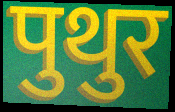
पुथुर